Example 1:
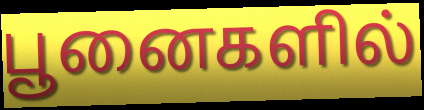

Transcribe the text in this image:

பூனைகளில்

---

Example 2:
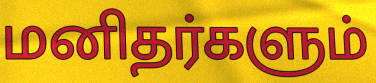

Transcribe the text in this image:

மனிதர்களும்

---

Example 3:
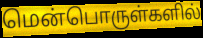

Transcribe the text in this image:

மென்பொருள்களில்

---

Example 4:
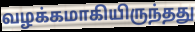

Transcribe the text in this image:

வழக்கமாகியிருந்தது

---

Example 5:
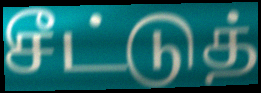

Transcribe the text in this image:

சீட்டுத்